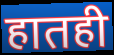
हातही